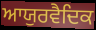
ਆਯੁਰਵੈਦਿਕ